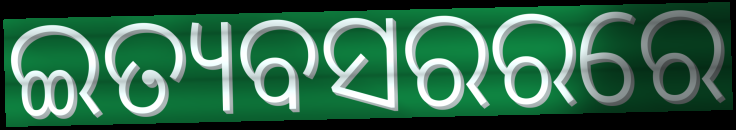
ଇତ୍ୟବସରରରେ